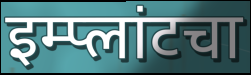
इम्प्लांटचा